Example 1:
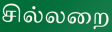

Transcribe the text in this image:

சில்லறை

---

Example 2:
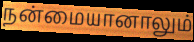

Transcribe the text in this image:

நன்மையானாலும்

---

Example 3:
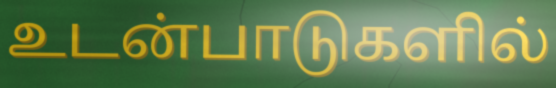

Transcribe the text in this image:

உடன்பாடுகளில்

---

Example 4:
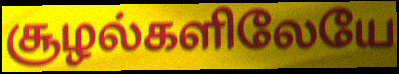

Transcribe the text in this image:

சூழல்களிலேயே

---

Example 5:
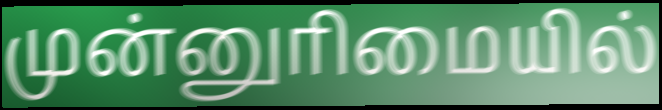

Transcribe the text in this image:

முன்னுரிமையில்